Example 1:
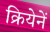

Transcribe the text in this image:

क्रियेनें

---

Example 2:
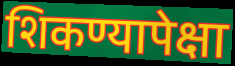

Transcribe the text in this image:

शिकण्यापेक्षा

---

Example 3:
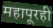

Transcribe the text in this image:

महापूरही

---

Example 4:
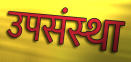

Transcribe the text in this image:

उपसंस्था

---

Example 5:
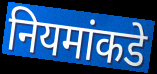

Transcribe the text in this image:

नियमांकडे